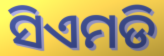
ସିଏମଡି